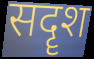
सदॄश